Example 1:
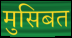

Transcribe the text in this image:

मुसिबत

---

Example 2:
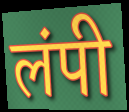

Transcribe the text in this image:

लंपी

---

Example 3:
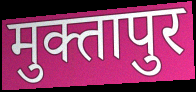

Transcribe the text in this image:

मुक्तापुर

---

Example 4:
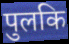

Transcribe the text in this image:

पुलकि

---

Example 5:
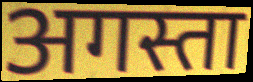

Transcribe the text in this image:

अगस्ता